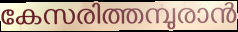
കേസരിത്തമ്പുരാൻ